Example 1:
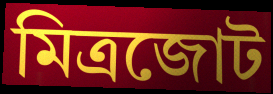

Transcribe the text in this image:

মিত্রজোট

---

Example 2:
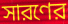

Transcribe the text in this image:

সারণের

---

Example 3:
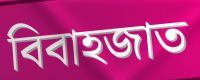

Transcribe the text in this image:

বিবাহজাত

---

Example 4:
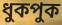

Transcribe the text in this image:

ধুকপুক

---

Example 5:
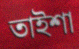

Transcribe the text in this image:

তাইশা